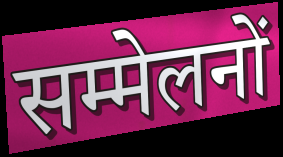
सम्‍मेलनों